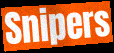
Snipers